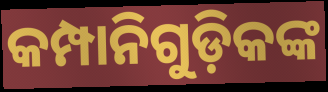
କମ୍ପାନିଗୁଡ଼ିକଙ୍କ